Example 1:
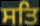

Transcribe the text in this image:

ਸਤਿ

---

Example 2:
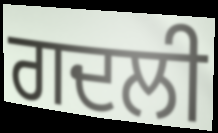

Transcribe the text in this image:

ਗਦਲੀ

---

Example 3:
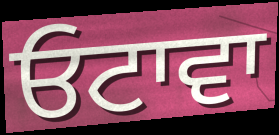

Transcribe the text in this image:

ਓਟਾਵਾ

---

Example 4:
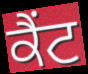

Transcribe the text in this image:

ਕੈਂਟ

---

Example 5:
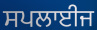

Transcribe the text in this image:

ਸਪਲਾਈਜ